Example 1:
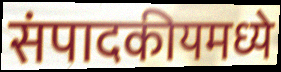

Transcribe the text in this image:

संपादकीयमध्ये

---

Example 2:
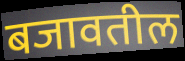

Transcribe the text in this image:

बजावतील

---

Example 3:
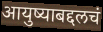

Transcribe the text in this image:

आयुष्याबद्दलचं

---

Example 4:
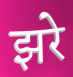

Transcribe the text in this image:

झरे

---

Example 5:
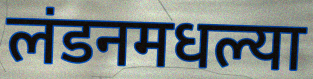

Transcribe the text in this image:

लंडनमधल्या